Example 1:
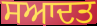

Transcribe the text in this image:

ਸਆਦਤ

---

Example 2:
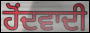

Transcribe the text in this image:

ਹੋਂਦਵਾਦੀ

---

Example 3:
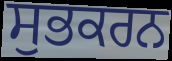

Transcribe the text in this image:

ਸੁਭਕਰਨ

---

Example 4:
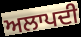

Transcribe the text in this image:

ਅਲਾਪਦੀ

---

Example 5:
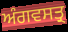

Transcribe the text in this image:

ਅੰਗਵਸਤ੍ਰ